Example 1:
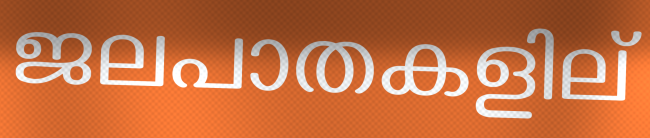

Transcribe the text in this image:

ജലപാതകളില്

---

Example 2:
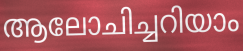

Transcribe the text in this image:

ആലോചിച്ചറിയാം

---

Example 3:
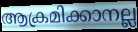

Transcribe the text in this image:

ആക്രമിക്കാനല്ല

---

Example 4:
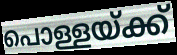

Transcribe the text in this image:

പൊള്ളയ്ക്ക്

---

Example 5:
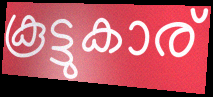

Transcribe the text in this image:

കൂട്ടുകാര്